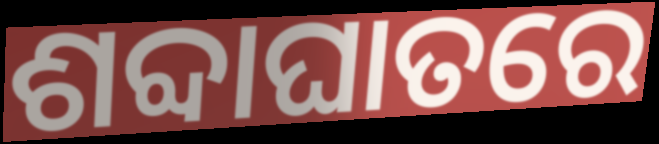
ଶବ୍ଦାଘାତରେ